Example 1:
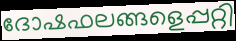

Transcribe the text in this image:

ദോഷഫലങ്ങളെപ്പറ്റി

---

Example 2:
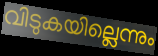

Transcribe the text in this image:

വിടുകയില്ലെന്നും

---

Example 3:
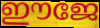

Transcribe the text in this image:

ഈജേ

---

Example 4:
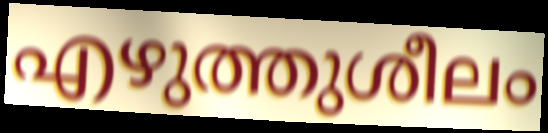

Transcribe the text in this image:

എഴുത്തുശീലം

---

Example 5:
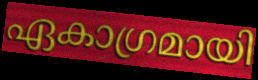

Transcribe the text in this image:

ഏകാഗ്രമായി